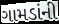
ગામડાંની